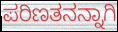
ಪರಿಣತನನ್ನಾಗಿ